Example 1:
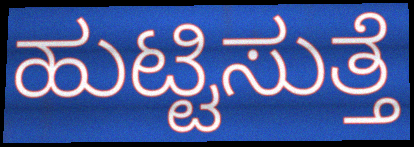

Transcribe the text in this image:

ಹುಟ್ಟಿಸುತ್ತೆ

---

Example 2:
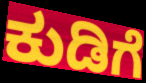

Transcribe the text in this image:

ಕುಡಿಗೆ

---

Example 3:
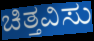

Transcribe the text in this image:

ಚಿತ್ತವಿಸು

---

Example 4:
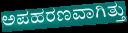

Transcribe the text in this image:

ಅಪಹರಣವಾಗಿತ್ತು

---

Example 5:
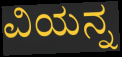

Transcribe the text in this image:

ವಿಯನ್ನ